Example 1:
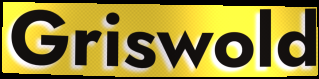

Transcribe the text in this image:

Griswold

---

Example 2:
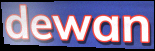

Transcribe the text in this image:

dewan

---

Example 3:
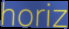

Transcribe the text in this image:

horiz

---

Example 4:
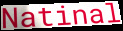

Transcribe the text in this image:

Natinal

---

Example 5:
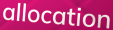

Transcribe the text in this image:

allocation